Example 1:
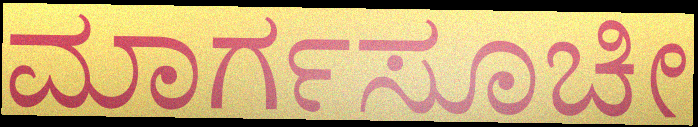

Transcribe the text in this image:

ಮಾರ್ಗಸೂಚೀ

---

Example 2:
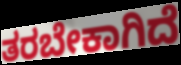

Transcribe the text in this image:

ತರಬೇಕಾಗಿದೆ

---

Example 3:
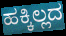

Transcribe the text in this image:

ಹಕ್ಕಿಲ್ಲದ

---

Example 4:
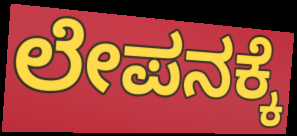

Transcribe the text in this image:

ಲೇಪನಕ್ಕೆ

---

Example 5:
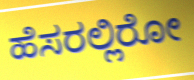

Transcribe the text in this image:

ಹೆಸರಲ್ಲಿರೋ